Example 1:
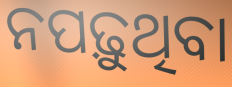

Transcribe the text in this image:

ନପଢ଼ୁଥିବା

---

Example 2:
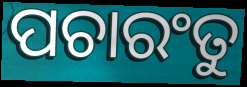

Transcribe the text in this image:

ପଚାରଂତୁ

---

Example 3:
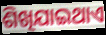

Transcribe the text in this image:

ଶିଖିଯାଇଥାଏ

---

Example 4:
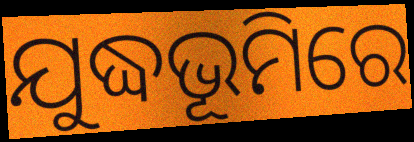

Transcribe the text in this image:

ଯୁଦ୍ଧଭୂମିରେ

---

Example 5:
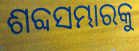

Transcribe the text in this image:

ଶବ୍ଦସମ୍ଭାରକୁ